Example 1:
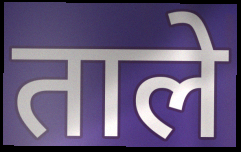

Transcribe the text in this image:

ताले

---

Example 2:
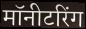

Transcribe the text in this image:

मॉनीटरिंग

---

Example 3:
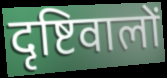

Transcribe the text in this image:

दृष्टिवालों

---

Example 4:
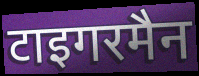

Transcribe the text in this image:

टाइगरमैन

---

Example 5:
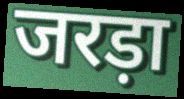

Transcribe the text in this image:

जरड़ा